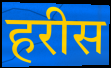
हरीस